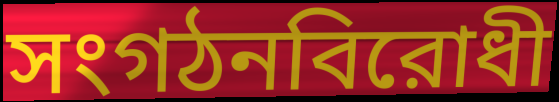
সংগঠনবিরোধী